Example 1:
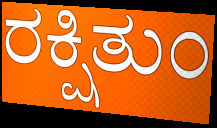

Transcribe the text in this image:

ರಕ್ಷಿತುಂ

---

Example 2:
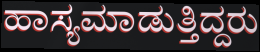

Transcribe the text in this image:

ಹಾಸ್ಯಮಾಡುತ್ತಿದ್ದರು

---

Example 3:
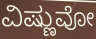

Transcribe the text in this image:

ವಿಷ್ಣುವೋ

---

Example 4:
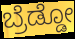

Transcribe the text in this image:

ಬ್ರೆಡ್ಡೋ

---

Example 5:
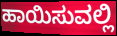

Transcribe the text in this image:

ಹಾಯಿಸುವಲ್ಲಿ